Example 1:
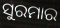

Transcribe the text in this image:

ସୁରମାର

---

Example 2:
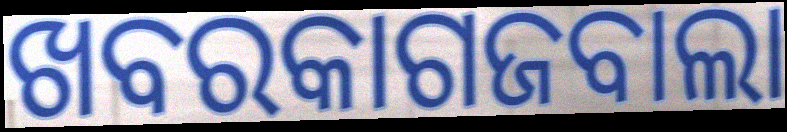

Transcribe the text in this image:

ଖବରକାଗଜବାଲା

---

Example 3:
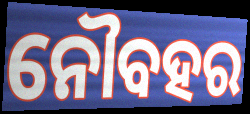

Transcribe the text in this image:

ନୌବହର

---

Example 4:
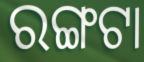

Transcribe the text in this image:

ରଙ୍ଗଟା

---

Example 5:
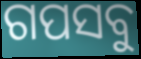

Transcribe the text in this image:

ଗପସବୁ